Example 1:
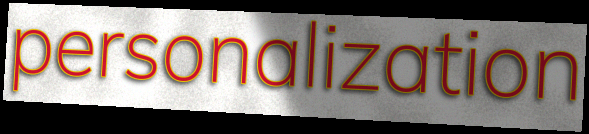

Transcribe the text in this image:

personalization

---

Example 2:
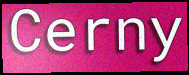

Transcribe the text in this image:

Cerny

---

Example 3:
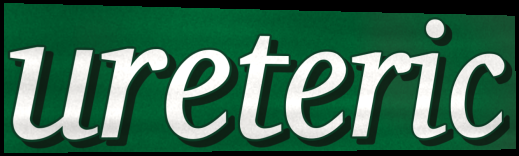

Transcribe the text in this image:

ureteric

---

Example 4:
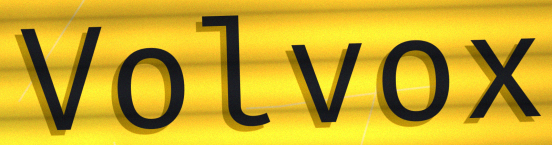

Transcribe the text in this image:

Volvox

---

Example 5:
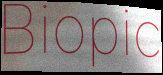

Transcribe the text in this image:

Biopic